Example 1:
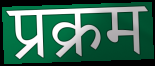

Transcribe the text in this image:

प्रक्रम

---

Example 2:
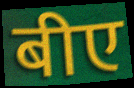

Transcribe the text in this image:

बीए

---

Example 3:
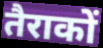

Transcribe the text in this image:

तैराकों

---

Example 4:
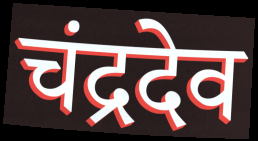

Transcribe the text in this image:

चंद्रदेव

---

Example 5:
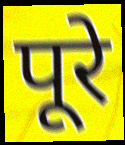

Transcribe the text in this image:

पूरे